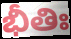
భీతిః